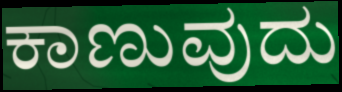
ಕಾಣುವುದು